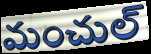
మంచుల్